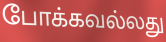
போக்கவல்லது